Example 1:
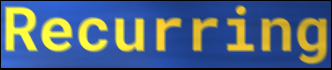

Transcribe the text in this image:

Recurring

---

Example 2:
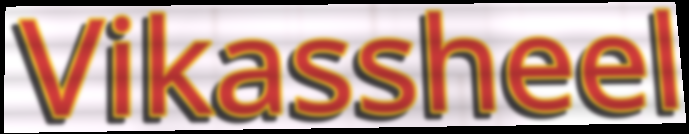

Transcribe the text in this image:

Vikassheel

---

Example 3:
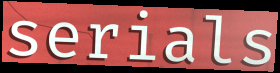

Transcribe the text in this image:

serials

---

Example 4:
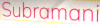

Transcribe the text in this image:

Subramani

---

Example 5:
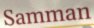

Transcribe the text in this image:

Samman